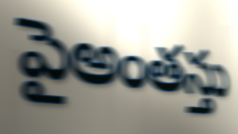
పైఅంతస్తు